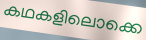
കഥകളിലൊക്കെ